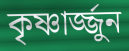
কৃষ্ণার্জ্জুন